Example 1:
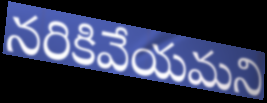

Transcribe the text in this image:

నరికివేయమని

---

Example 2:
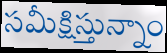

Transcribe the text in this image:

సమీక్షిస్తున్నాం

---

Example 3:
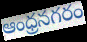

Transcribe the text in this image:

ఆంధ్రనగరం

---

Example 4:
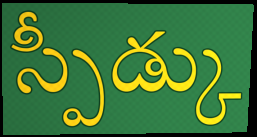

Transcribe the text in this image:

స్పీడ్కు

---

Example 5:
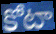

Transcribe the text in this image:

కోటా